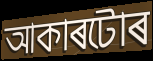
আকাৰটোৰ